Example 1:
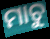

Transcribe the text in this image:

ମାଚୁ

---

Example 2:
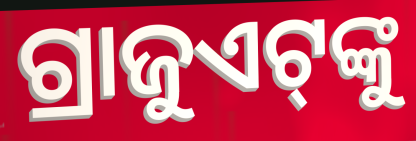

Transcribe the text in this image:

ଗ୍ରାଜୁଏଟ୍‌ଙ୍କୁ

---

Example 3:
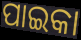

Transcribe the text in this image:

ପାଇକା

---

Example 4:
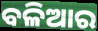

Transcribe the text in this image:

ବଳିଆର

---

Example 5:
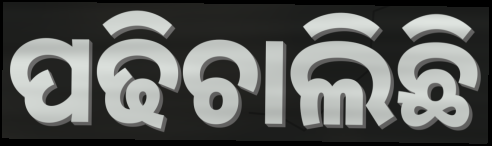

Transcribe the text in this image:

ପଢିଚାଲିଛି